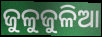
ଜୁଳୁଜୁଳିଆ